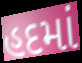
હદમાં